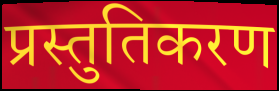
प्रस्तुतिकरण